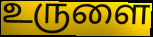
உருளை